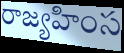
రాజ్యహింస